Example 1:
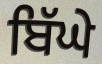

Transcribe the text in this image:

ਬਿੱਘੇ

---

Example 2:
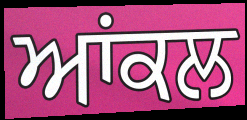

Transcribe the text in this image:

ਆਂਕਲ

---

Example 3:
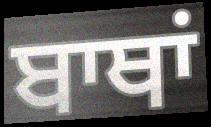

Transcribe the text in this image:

ਬਾਥਾਂ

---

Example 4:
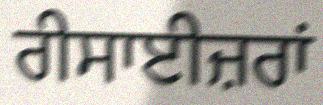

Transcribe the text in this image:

ਰੀਸਾਈਜ਼ਰਾਂ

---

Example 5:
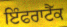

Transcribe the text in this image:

ਇੰਫਰਾਟੈੱਕ